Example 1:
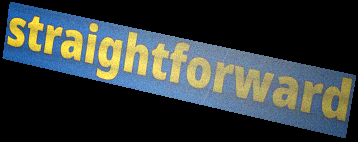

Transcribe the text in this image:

straightforward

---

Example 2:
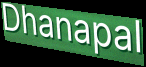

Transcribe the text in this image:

Dhanapal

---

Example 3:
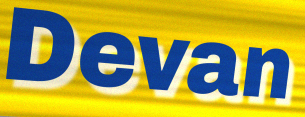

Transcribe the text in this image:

Devan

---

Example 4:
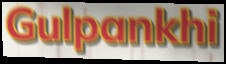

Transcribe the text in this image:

Gulpankhi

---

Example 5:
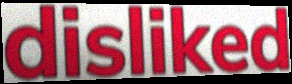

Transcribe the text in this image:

disliked